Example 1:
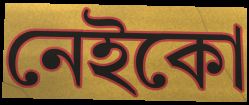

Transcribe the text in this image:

নেইকো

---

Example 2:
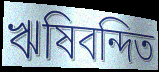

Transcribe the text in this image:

ঋষিবন্দিত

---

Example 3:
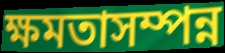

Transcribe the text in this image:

ক্ষমতাসম্পন্ন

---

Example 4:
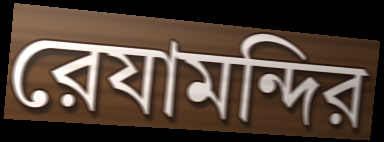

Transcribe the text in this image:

রেযামন্দির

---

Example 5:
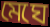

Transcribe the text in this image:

মেঘে